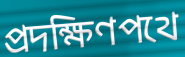
প্রদক্ষিণপথে